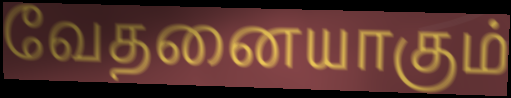
வேதனையாகும்